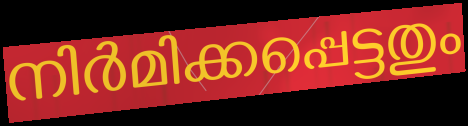
നിർമിക്കപ്പെട്ടതും